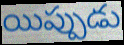
యిప్పుడు